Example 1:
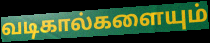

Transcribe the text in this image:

வடிகால்களையும்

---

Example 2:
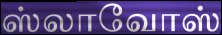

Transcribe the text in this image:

ஸ்லாவோஸ்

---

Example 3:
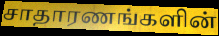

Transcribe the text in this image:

சாதாரணங்களின்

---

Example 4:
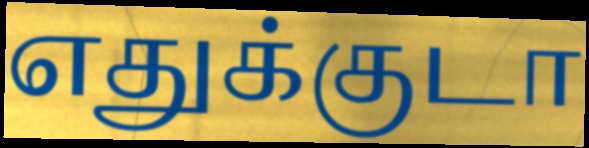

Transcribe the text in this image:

எதுக்குடா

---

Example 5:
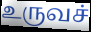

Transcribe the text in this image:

உருவச்